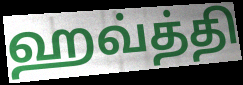
ஹவ்த்தி